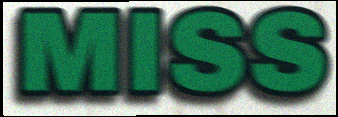
MISS